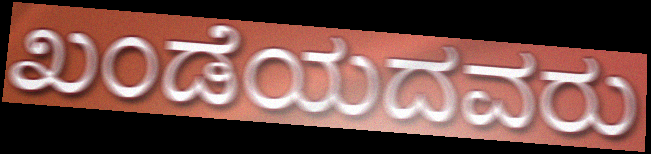
ಖಂಡೆಯದವರು